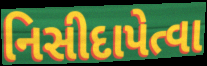
નિસીદાપેત્વા